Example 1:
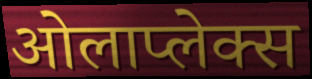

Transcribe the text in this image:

ओलाप्लेक्स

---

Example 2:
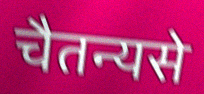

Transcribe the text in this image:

चैतन्यसे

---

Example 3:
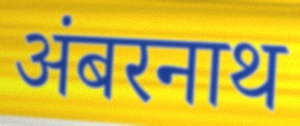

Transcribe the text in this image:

अंबरनाथ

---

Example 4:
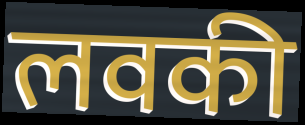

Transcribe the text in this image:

लवकी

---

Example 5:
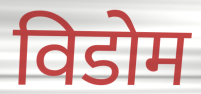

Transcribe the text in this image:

विडोम